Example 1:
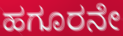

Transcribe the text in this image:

ಹಗೂರನೇ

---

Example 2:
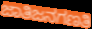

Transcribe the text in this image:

ಜಾತಿಜನಗಣತಿ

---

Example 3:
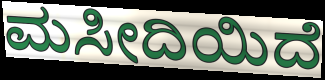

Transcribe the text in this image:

ಮಸೀದಿಯಿದೆ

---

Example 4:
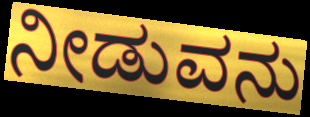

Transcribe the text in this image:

ನೀಡುವನು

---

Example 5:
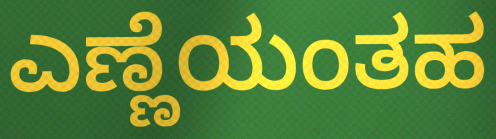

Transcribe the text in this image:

ಎಣ್ಣೆಯಂತಹ